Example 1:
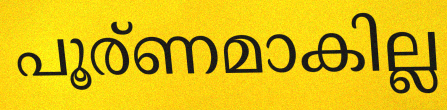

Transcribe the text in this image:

പൂര്ണമാകില്ല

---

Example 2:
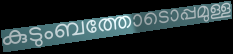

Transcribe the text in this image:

കുടുംബത്തോടൊപ്പമുള്ള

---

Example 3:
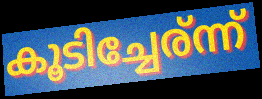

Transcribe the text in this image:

കൂടിച്ചേര്ന്ന്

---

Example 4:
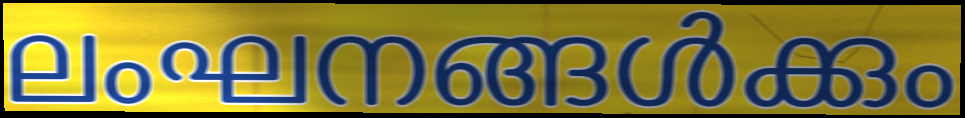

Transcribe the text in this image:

ലംഘനങ്ങൾക്കും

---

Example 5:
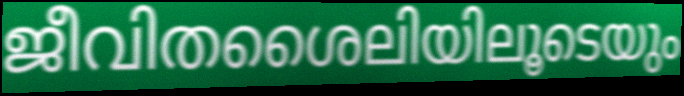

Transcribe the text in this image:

ജീവിതശൈലിയിലൂടെയും